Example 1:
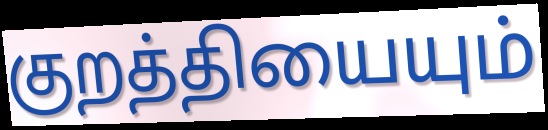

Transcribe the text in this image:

குறத்தியையும்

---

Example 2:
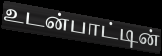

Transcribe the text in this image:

உடன்பாட்டின்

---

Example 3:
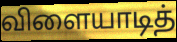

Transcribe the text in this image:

விளையாடித்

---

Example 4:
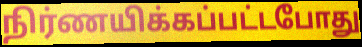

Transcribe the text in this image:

நிர்ணயிக்கப்பட்டபோது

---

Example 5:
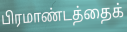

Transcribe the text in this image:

பிரமாண்டத்தைக்